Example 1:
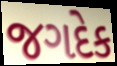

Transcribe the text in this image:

જગદેક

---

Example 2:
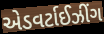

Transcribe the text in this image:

એડવર્ટાઈઝીંગ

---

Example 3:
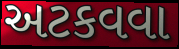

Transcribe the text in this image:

અટકવવા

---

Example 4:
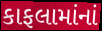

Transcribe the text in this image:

કાફલામાંનાં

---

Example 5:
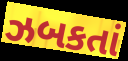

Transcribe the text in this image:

ઝબકતાં